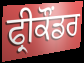
ਫ੍ਰੀਕੌਂਡਰ